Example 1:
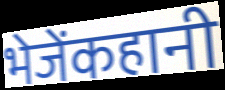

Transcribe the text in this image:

भेजेंकहानी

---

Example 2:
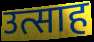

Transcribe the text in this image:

उत्साह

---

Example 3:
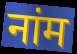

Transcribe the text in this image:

नांम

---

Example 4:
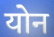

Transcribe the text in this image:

योन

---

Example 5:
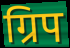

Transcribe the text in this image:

ग्रिप